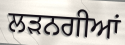
ਲੜਨਗੀਆਂ